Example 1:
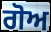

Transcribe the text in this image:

ਗੋਅ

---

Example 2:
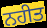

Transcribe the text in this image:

ਨਹੀਤ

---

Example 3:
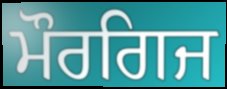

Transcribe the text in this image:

ਮੌਰਗਿਜ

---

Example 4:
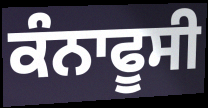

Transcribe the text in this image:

ਕੰਨਾਫੂਸੀ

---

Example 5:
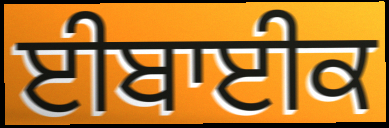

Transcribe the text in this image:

ਈਬਾਈਕ